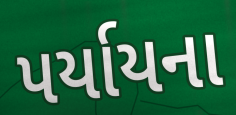
પર્યાયના